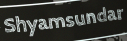
Shyamsundar